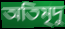
অতিমৃদু